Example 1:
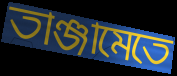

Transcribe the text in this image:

তাঞ্জামেতে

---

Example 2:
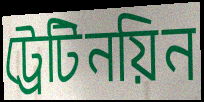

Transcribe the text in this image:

ট্রেটিনয়িন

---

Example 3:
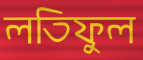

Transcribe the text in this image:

লতিফুল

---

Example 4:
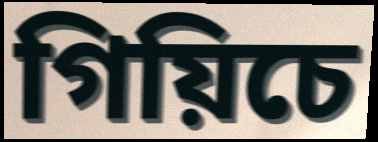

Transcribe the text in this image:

গিয়িচে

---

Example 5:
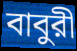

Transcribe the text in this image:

বাবুরী